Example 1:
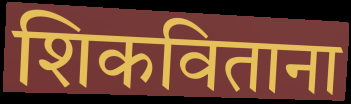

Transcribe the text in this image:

शिकविताना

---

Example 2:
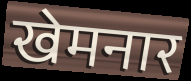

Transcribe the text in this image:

खेमनार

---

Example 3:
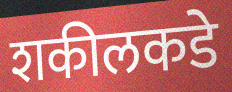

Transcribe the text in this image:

शकीलकडे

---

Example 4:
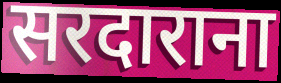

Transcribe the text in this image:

सरदाराना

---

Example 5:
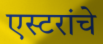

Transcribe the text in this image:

एस्टरांचे